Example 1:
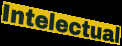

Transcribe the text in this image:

Intelectual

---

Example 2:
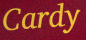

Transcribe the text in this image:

Cardy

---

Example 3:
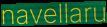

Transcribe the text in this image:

navellaru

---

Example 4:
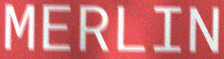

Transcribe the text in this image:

MERLIN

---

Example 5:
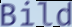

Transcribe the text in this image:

Bild